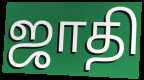
ஜாதி